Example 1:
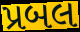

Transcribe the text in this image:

પ્રબલ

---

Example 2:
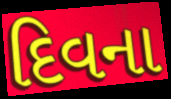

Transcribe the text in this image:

દિવના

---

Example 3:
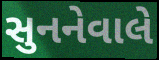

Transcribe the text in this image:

સુનનેવાલે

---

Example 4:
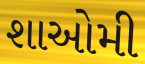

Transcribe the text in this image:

શાઓમી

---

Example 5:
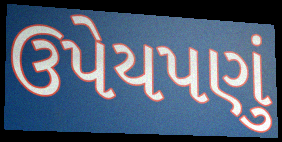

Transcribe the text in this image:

ઉપેયપણું